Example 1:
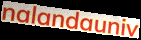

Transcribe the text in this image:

nalandauniv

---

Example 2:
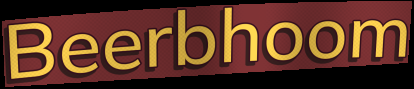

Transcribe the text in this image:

Beerbhoom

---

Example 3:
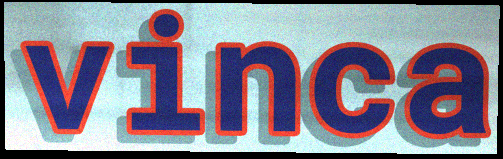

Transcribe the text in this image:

vinca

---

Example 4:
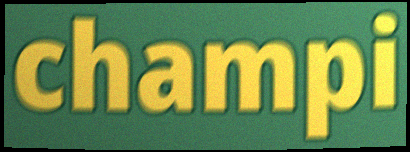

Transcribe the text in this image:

champi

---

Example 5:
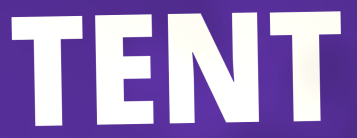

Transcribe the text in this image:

TENT